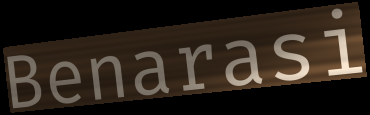
Benarasi